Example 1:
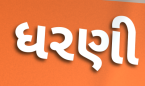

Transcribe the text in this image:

ધરણી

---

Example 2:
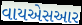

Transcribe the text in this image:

વાયએસઆર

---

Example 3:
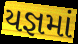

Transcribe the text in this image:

યજ્ઞમાં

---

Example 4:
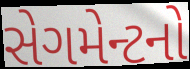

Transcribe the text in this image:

સેગમેન્ટનો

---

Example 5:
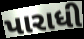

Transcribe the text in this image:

પારાધી